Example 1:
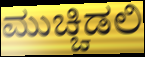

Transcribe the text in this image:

ಮುಚ್ಚಿಡಲಿ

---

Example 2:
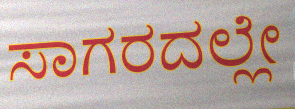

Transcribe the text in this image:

ಸಾಗರದಲ್ಲೇ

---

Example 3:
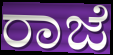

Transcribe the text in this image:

ರಾಜೆ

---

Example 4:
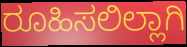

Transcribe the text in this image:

ರೂಹಿಸಲಿಲ್ಲಾಗಿ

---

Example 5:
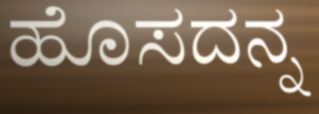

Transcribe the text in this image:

ಹೊಸದನ್ನ